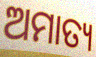
ଅମାତ୍ୟ